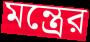
মন্ত্রের